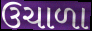
ઉચાળા